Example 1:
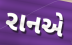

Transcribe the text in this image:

રાનએ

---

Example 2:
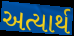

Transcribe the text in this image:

અત્યાર્થ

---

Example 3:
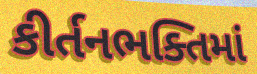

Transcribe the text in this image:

કીર્તનભક્તિમાં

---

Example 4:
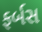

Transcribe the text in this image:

ફર્બસ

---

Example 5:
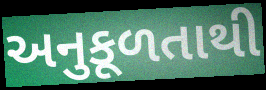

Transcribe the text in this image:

અનુકૂળતાથી